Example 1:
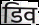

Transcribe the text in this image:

डिव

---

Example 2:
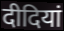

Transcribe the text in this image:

दीदियां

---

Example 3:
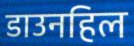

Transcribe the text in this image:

डाउनहिल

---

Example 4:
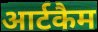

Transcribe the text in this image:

आर्टकैम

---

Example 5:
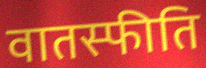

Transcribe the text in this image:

वातस्फीति